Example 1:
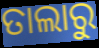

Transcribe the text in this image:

ତାଲାରୁ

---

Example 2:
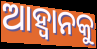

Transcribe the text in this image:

ଆହ୍ବାନକୁ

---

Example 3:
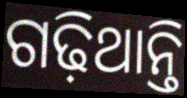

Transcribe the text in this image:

ଗଢ଼ିଥାନ୍ତି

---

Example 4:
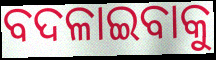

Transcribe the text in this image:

ବଦଳାଇବାକୁ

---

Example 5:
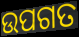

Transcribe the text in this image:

ଉପଗତ